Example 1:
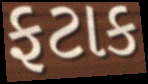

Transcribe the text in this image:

ફટાક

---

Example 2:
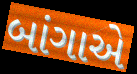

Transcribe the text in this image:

બાંગાએ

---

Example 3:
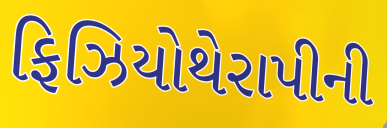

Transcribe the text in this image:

ફિઝિયોથેરાપીની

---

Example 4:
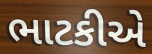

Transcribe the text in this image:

ભાટકીએ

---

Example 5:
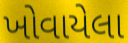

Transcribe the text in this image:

ખોવાયેલા